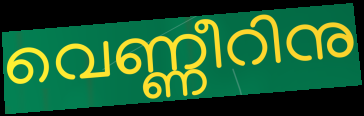
വെണ്ണീറിനു